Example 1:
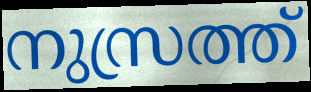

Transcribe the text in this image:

നുസ്രത്ത്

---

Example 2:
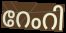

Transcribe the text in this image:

റേംറി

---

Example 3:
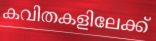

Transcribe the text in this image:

കവിതകളിലേക്ക്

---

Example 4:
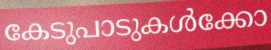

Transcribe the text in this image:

കേടുപാടുകൾക്കോ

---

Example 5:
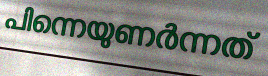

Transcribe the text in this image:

പിന്നെയുണർന്നത്